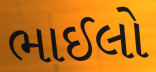
ભાઈલો